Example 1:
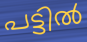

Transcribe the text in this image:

പട്ടിൽ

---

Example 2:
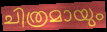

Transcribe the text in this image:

ചിത്രമായും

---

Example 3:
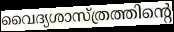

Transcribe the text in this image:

വൈദ്യശാസ്ത്രത്തിന്റെ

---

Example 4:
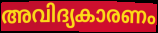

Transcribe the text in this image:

അവിദ്യകാരണം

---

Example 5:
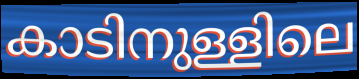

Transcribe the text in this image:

കാടിനുള്ളിലെ